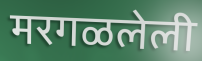
मरगळलेली